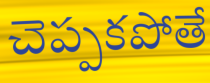
చెప్పకపోతే